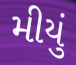
મીયું